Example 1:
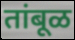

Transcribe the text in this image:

तांबूळ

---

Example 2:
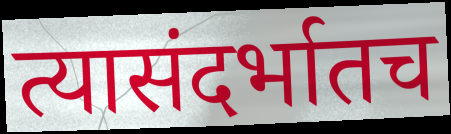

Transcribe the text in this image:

त्यासंदर्भातच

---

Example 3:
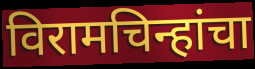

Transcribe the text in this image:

विरामचिन्हांचा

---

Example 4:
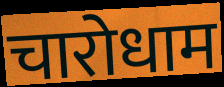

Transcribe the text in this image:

चारोधाम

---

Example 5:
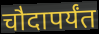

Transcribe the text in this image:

चौदापर्यंत